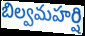
బిల్వమహర్షి